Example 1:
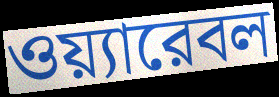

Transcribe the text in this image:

ওয়্যারেবল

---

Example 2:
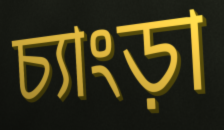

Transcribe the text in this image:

চ্যাংড়া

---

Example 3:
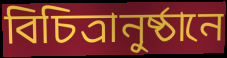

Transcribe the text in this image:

বিচিত্রানুষ্ঠানে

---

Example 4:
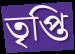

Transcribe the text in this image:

তৃপ্তি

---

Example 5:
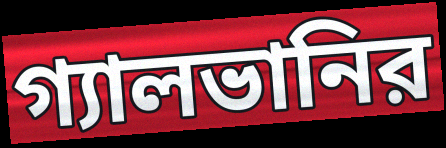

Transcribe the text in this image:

গ্যালভানির